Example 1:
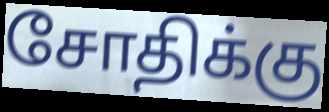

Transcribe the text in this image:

சோதிக்கு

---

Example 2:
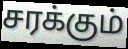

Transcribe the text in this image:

சரக்கும்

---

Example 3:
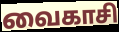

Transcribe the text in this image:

வைகாசி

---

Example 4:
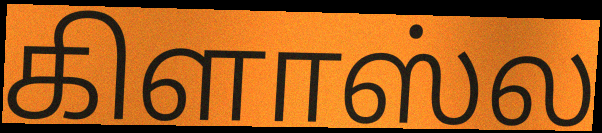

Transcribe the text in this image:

கிளாஸ்ல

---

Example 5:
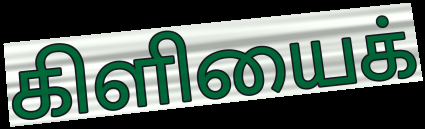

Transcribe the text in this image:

கிளியைக்